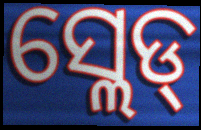
ସ୍ଲେଡ୍